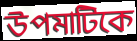
উপমাটিকে